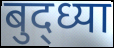
बुद्ध्या